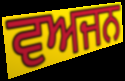
ਵਅਜਨ